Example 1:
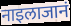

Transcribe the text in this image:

नाइलाजानं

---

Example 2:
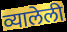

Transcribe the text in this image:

व्यालेली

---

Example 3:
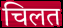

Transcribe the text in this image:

चिलत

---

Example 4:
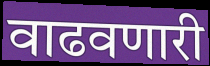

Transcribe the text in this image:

वाढवणारी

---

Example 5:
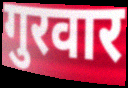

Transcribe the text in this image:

गुरवार